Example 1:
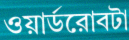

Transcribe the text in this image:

ওয়ার্ডরোবটা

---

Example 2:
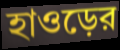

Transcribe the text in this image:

হাওড়ের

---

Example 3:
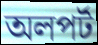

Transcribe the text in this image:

অলপর্ট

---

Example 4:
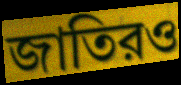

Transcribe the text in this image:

জাতিরও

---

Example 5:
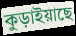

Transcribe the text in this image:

কুড়াইয়াছে